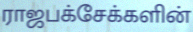
ராஜபக்சேக்களின்